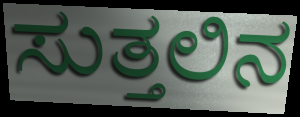
ಸುತ್ತಲಿನ